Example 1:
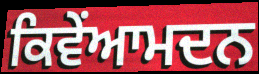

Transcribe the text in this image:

ਕਿਵੇਂਆਮਦਨ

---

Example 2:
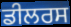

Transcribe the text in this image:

ਡੀਲਰਸ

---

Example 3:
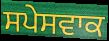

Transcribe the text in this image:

ਸਪੇਸਵਾਕ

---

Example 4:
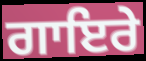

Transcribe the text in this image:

ਗਾਇਰੇ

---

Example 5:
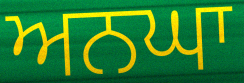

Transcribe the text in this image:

ਅਨਘਾ